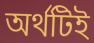
অর্থটিই